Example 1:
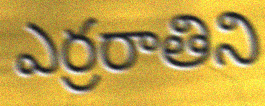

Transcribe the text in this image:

ఎర్రరాతిని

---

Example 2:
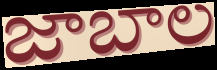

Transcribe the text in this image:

జాబాల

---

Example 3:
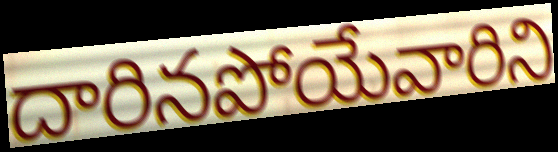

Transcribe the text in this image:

దారినపోయేవారిని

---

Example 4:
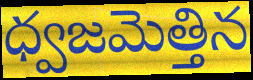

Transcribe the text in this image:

ధ్వజమెత్తిన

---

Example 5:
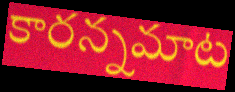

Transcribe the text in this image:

కారన్నమాట